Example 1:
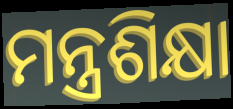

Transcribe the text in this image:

ମନ୍ତ୍ରଶିକ୍ଷା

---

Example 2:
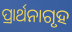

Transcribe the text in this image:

ପ୍ରାର୍ଥନାଗୃହ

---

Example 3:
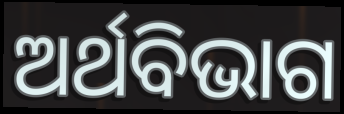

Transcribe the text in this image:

ଅର୍ଥବିଭାଗ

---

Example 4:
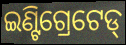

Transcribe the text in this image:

ଇଣ୍ଟିଗ୍ରେଟେଡ୍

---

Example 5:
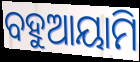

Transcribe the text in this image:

ବହୁଆୟାମି